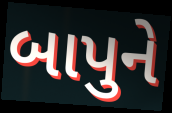
બાપુને